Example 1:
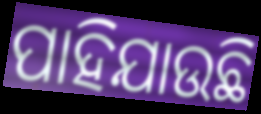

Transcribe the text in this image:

ପାହିଯାଉଛି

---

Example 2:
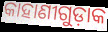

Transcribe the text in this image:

କାହାଣୀଗୁଡ଼ାକ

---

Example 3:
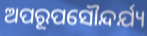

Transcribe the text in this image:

ଅପରୂପସୌନ୍ଦର୍ଯ୍ୟ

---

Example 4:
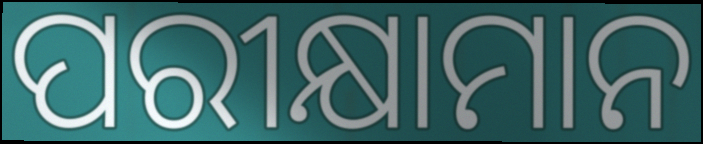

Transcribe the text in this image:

ପରୀକ୍ଷାମାନ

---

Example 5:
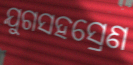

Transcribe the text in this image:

ଯୁଗସହସ୍ରେଣ